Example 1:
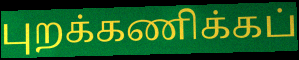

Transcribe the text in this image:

புறக்கணிக்கப்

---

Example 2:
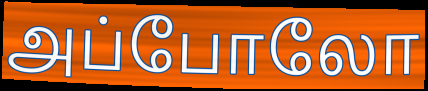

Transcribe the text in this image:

அப்போலோ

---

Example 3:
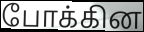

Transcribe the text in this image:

போக்கின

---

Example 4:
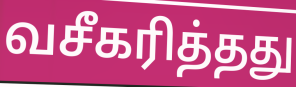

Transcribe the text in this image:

வசீகரித்தது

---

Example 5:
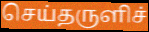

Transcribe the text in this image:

செய்தருளிச்